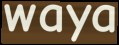
waya